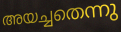
അയച്ചതെന്നു